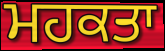
ਮਹਕਤਾ